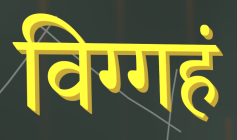
विग्गहं